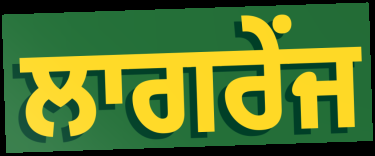
ਲਾਗਰੇਂਜ